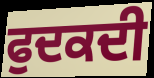
ਫੁਦਕਦੀ